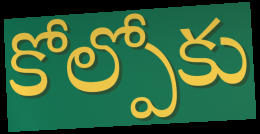
కోల్పోకు